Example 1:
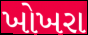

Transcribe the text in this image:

ખોખરા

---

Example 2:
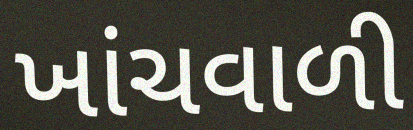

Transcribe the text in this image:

ખાંચવાળી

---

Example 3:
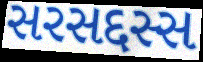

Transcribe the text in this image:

સરસદ્દસ્સ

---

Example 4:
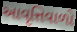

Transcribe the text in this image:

આવૃત્તિવાળો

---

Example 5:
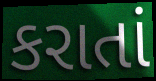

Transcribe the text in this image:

કરાતાં